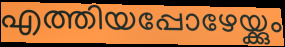
എത്തിയപ്പോഴേയ്ക്കും